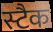
स्‍टैक